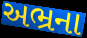
અભ્રના